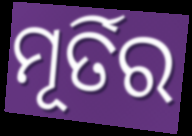
ମୂର୍ତିର